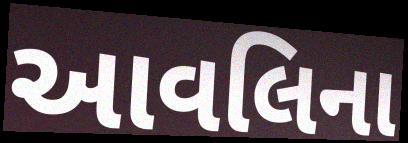
આવલિના